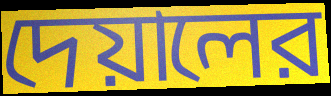
দেয়ালের